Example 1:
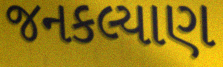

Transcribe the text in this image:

જનકલ્યાણ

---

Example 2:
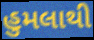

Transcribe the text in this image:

હુમલાથી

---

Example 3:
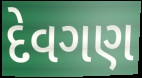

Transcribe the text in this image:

દેવગણ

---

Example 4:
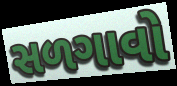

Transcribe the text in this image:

સળગાવો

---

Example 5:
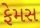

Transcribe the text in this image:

ફેમસ